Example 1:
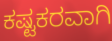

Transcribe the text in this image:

ಕಷ್ಟಕರವಾಗಿ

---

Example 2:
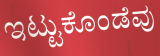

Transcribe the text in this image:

ಇಟ್ಟುಕೊಂಡೆವು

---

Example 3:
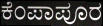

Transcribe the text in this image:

ಕೆಂಪಾಪೂರ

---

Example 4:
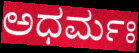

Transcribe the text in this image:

ಅಧರ್ಮಃ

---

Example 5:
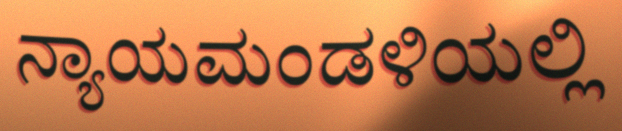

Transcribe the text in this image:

ನ್ಯಾಯಮಂಡಳಿಯಲ್ಲಿ